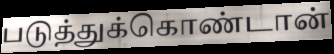
படுத்துக்கொண்டான்